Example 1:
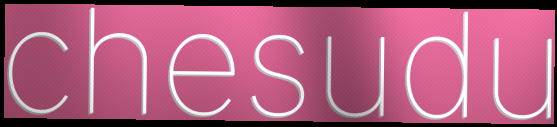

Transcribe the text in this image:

chesudu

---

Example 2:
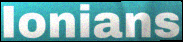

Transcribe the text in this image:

Ionians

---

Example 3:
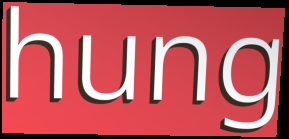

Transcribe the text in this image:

hung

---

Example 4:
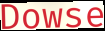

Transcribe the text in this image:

Dowse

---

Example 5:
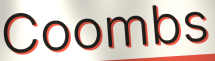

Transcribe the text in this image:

Coombs